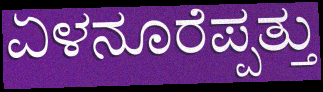
ಏಳನೂರೆಪ್ಪತ್ತು